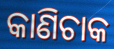
କାଣିଚାକ